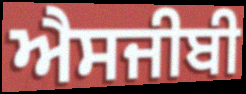
ਐਸਜੀਬੀ